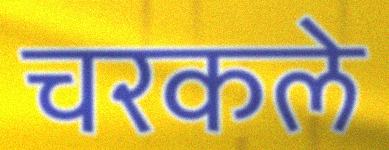
चरकले